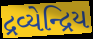
દ્રવ્યેન્દ્રિય